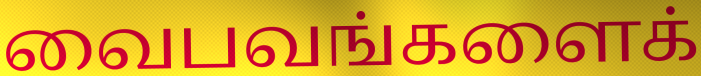
வைபவங்களைக்